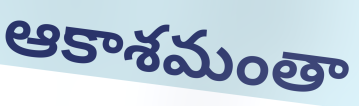
ఆకాశమంతా